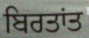
ਬਿਰਤਾਂਤ